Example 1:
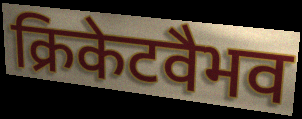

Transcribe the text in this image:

क्रिकेटवैभव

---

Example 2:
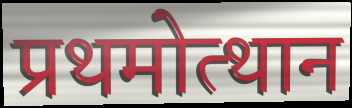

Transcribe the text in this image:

प्रथमोत्थान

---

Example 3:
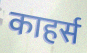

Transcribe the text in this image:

काहर्स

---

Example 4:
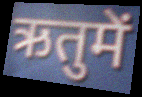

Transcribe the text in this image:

ऋतुमें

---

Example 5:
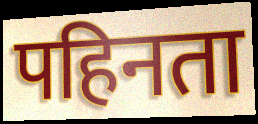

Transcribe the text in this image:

पहिनता